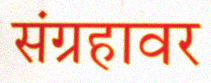
संग्रहावर